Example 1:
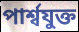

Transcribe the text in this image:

পার্শ্বযুক্ত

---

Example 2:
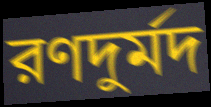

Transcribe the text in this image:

রণদুর্মদ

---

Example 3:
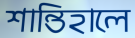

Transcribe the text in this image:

শান্তিহালে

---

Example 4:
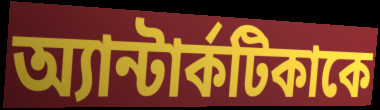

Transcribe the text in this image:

অ্যান্টার্কটিকাকে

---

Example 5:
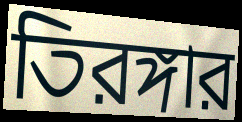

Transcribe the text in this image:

তিরঙ্গার